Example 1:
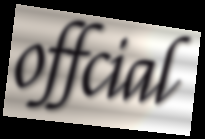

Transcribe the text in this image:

offcial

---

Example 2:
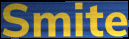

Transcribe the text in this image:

Smite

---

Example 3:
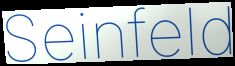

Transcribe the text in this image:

Seinfeld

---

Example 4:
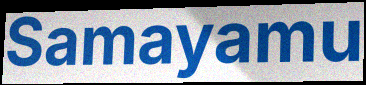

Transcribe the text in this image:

Samayamu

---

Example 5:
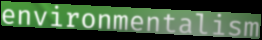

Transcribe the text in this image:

environmentalism